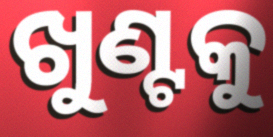
ଖୁଣ୍ଟକୁ